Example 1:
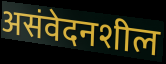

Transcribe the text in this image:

असंवेदनशील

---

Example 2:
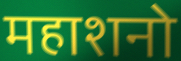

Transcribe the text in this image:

महाशनो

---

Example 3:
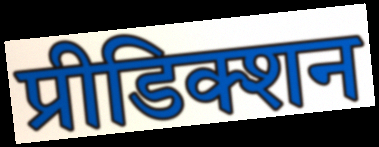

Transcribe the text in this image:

प्रीडिक्शन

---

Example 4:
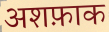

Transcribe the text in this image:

अशफ़ाक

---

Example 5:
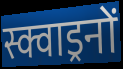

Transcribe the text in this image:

स्क्वाड्रनों